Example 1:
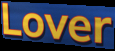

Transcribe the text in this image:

Lover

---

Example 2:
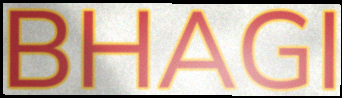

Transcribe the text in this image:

BHAGI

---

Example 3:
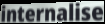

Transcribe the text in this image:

internalise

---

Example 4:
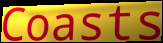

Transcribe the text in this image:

Coasts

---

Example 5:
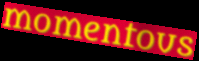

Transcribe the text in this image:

momentous